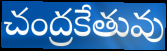
చంద్రకేతువు